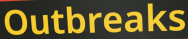
Outbreaks